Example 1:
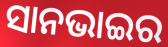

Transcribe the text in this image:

ସାନଭାଇର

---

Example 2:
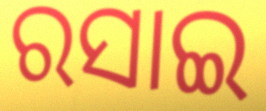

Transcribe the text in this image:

ରସାଇ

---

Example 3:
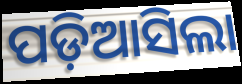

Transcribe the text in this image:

ପଡ଼ିଆସିଲା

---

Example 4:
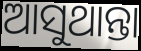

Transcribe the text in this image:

ଆସୁଥାନ୍ତା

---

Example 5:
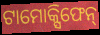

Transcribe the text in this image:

ଟାମୋକ୍ସିଫେନ୍